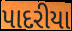
પાદરીયા